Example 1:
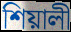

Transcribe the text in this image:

শিয়ালী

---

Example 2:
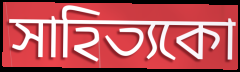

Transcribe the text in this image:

সাহিত্যকো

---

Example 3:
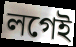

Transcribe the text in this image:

লগেই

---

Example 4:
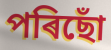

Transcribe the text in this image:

পৰিছোঁ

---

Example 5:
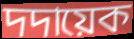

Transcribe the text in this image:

দদায়েক